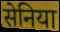
सेनिया